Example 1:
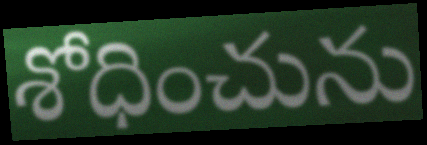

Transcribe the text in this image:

శోధించును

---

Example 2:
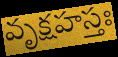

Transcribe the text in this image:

వృక్షహస్తః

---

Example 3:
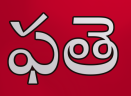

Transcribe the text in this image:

ఫతె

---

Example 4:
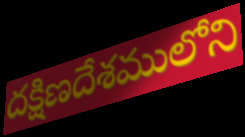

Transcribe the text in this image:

దక్షిణదేశములోని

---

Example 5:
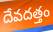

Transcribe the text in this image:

దేవదత్తం